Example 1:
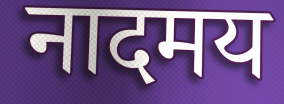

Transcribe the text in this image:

नादमय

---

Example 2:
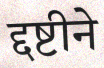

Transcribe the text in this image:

द्दष्टीने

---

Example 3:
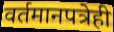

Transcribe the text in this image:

वर्तमानपत्रेही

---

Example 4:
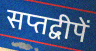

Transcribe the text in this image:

सप्तद्वीपें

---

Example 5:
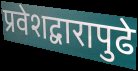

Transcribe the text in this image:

प्रवेशद्वारापुढे